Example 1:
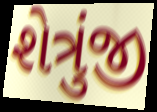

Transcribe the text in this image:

શેત્રુંજી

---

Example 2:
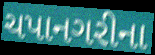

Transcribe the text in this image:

ચપાનગરીના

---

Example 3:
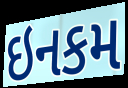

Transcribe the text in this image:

ઇનકમ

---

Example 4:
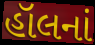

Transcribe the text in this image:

હૉલનાં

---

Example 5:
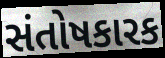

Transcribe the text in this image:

સંતોષકારક